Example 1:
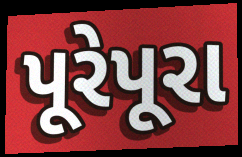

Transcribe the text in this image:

પૂરેપૂરા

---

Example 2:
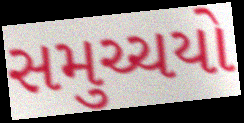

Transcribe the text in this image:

સમુચ્ચયો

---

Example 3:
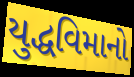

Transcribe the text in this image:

યુદ્ધવિમાનો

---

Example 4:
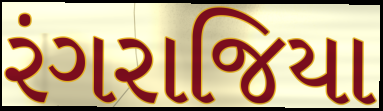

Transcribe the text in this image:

રંગરાજિયા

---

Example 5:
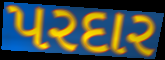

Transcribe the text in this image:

પરદાર